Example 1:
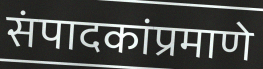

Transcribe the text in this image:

संपादकांप्रमाणे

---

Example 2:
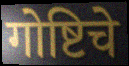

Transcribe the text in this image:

गोष्टिचे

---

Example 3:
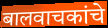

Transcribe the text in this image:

बालवाचकांचे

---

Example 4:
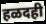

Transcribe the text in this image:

हळदही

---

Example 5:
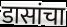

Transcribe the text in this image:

डासांचा